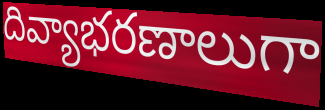
దివ్యాభరణాలుగా